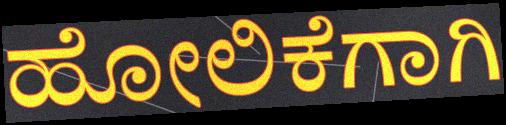
ಹೋಲಿಕೆಗಾಗಿ